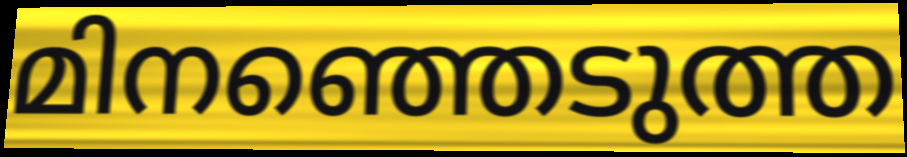
മിനഞ്ഞെടുത്ത